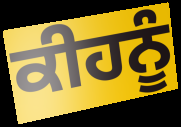
ਕੀਹਨੂੰ